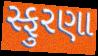
સ્ફુરણા